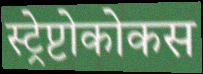
स्ट्रेप्टोकोकस